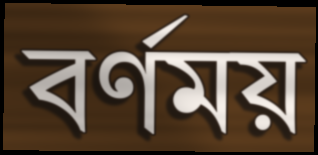
বর্ণময়